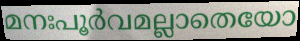
മനഃപൂർവമല്ലാതെയോ